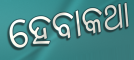
ହେବାକଥା